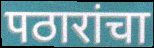
पठारांचा